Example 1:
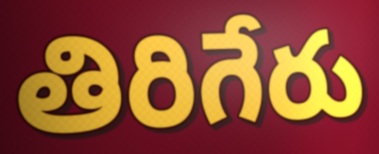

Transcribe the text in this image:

తిరిగేరు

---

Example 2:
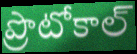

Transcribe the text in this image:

ప్రొటోకాల్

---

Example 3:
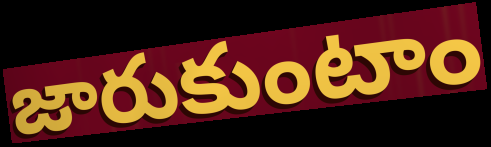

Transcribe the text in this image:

జారుకుంటాం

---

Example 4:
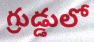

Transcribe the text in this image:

గ్రుడ్డులో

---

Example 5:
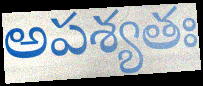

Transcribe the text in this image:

అపశ్యతః